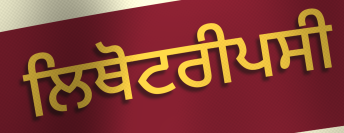
ਲਿਥੋਟਰੀਪਸੀ